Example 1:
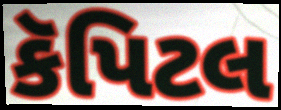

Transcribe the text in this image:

કૅપિટલ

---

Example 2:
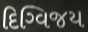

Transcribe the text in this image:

દિગ્વિજય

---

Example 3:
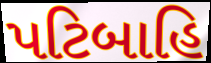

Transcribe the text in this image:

પટિબાહિ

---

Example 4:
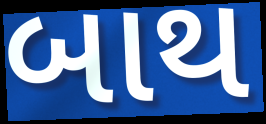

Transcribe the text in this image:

બાથ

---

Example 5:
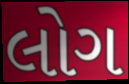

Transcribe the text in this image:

લોગ